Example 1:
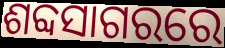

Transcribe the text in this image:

ଶବ୍ଦସାଗରରେ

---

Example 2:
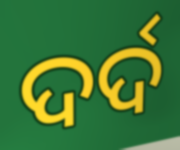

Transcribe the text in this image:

ଦର୍ଦ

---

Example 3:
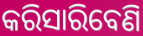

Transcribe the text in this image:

କରିସାରିବେଣି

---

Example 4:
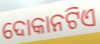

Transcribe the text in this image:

ଦୋକାନଟିଏ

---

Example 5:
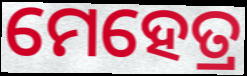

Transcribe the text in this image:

ମେହେତ୍ର